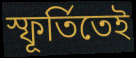
স্ফূর্তিতেই